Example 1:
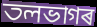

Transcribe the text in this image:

তলভাগৰ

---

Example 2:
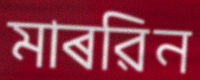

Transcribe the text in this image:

মাৰৱিন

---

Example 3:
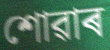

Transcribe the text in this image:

শোৱাৰ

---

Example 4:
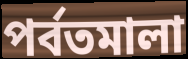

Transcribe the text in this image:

পৰ্বতমালা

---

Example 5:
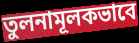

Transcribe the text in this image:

তুলনামূলকভাবে